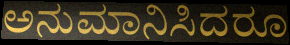
ಅನುಮಾನಿಸಿದರೂ